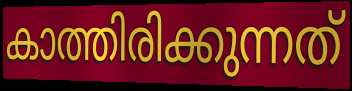
കാത്തിരിക്കുന്നത്